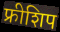
फ्रीशिप